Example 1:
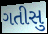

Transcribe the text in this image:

ગતીસુ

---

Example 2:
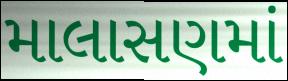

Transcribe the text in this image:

માલાસણમાં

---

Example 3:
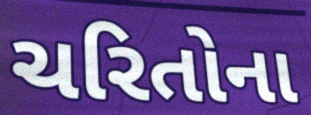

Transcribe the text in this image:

ચરિતોના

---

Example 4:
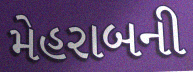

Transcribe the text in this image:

મેહરાબની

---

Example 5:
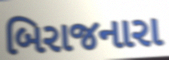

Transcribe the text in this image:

બિરાજનારા